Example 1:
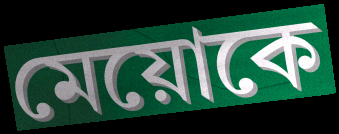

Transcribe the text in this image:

মেয়োকে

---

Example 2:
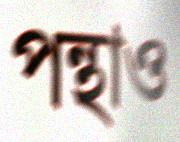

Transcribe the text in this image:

পন্থাও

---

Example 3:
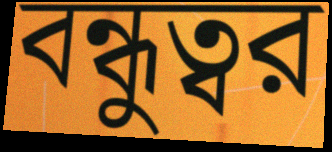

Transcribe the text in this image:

বন্ধুত্বর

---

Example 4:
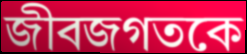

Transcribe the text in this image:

জীবজগতকে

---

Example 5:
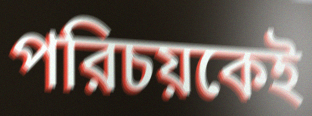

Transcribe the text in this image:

পরিচয়কেই